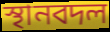
স্থানবদল